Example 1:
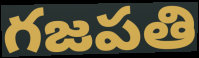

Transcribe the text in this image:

గజపతి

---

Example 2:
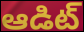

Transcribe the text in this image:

ఆడిట్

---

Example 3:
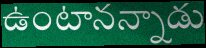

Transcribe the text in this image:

ఉంటానన్నాడు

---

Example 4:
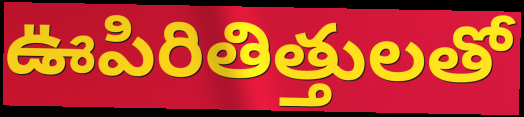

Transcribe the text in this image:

ఊపిరితిత్తులతో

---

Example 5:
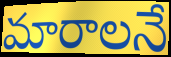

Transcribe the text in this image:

మారాలనే